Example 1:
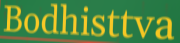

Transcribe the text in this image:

Bodhisttva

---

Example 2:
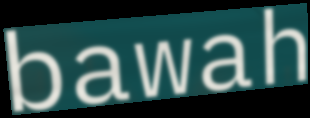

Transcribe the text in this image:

bawah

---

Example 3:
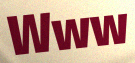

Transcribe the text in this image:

Www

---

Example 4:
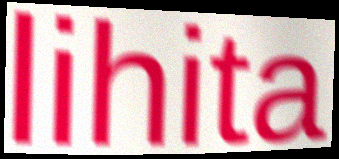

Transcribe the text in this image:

lihita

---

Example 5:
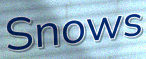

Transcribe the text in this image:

Snows